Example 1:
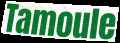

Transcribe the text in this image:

Tamoule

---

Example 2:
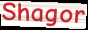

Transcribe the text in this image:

Shagor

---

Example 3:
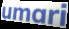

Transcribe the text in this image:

umari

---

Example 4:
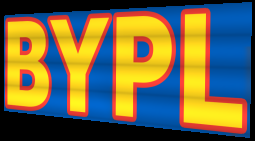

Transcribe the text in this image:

BYPL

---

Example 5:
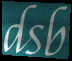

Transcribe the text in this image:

dsb